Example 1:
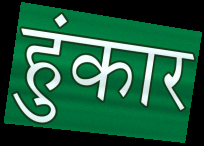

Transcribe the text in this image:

हुंकार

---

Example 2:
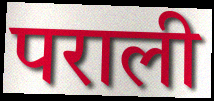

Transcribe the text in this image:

पराली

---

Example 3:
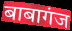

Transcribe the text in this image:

बाबागंज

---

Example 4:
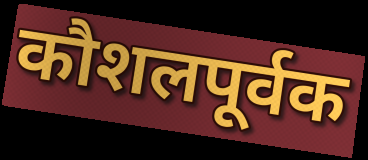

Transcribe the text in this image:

कौशलपूर्वक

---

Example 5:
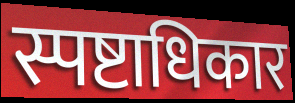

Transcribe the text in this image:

स्पष्टाधिकार